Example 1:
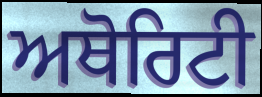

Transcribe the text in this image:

ਅਥੋਰਿਟੀ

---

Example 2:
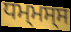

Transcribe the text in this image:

ਧਮ੍ਮਸ੍ਸ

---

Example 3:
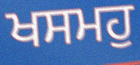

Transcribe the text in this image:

ਖਸਮਹੁ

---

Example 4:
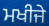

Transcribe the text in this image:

ਮਖੀਜੇ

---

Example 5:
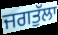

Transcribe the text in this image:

ਜਗਤੁੱਲਾ